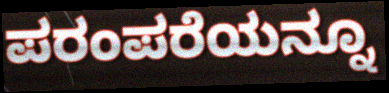
ಪರಂಪರೆಯನ್ನೂ